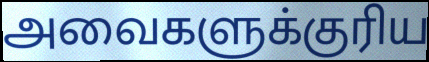
அவைகளுக்குரிய